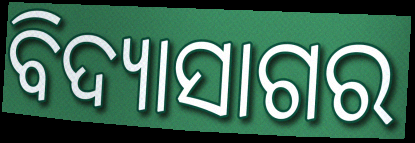
ବିଦ୍ୟାସାଗର